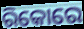
ରିକୋରେ